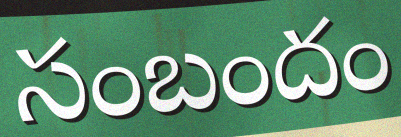
సంబందం